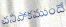
చనిపోకముందే